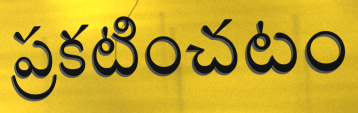
ప్రకటించటం